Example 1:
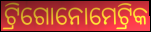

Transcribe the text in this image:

ଟ୍ରିଗୋନୋମେଟ୍ରିକ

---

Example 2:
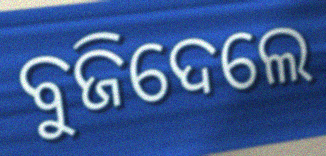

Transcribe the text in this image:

ବୁଜିଦେଲେ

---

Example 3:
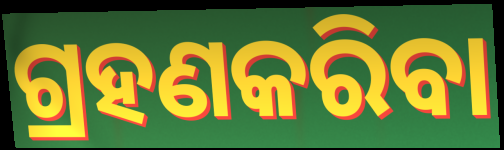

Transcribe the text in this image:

ଗ୍ରହଣକରିବା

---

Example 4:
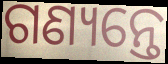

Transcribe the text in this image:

ଗଣ୍ୟନ୍ତେ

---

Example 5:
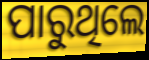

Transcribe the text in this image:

ପାରୁଥିଲେ